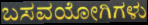
ಬಸವಯೋಗಿಗಳು